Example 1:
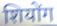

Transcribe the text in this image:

शियोंग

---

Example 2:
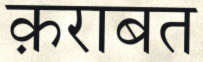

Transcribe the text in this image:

क़राबत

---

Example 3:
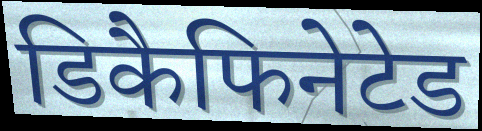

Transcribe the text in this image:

डिकैफिनेटेड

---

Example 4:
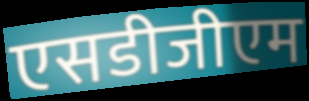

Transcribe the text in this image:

एसडीजीएम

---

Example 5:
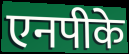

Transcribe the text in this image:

एनपीके